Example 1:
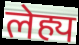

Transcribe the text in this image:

लेह्य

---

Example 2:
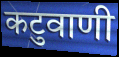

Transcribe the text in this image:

कटुवाणी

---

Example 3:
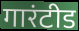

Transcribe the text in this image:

गारंटीड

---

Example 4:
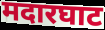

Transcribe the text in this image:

मदारघाट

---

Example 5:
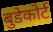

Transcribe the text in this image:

बुडेकोर्ट